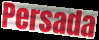
Persada